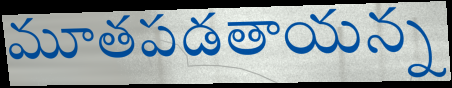
మూతపడతాయన్న